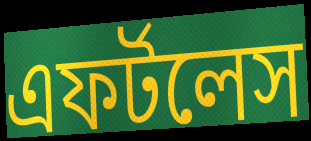
এফর্টলেস